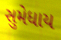
સુમેધાય